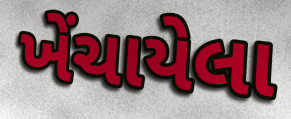
ખેંચાયેલા